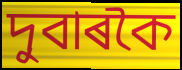
দুবাৰকৈ